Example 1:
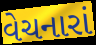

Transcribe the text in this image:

વેચનારાં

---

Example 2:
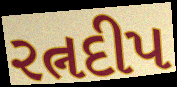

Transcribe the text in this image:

રત્નદીપ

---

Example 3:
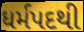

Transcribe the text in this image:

ધર્મપદથી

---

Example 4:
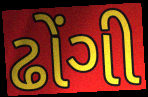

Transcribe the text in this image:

ઢોંગી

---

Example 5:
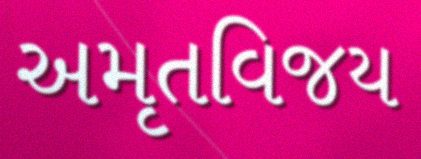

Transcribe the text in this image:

અમૃતવિજય